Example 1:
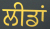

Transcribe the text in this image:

ਲੀਡਾਂ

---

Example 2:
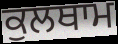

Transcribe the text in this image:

ਕੁਲਥਾਮ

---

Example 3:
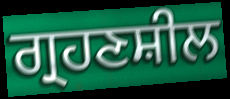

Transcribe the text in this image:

ਗ੍ਰਹਣਸ਼ੀਲ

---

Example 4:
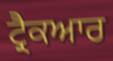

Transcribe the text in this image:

ਟ੍ਰੈਕਆਰ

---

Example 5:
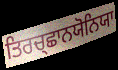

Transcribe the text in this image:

ਤਿਰਚ੍ਛਾਨਯੋਨਿਯਾ